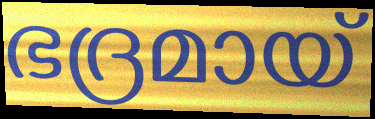
ഭദ്രമായ്